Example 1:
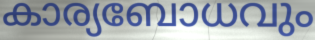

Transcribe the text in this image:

കാര്യബോധവും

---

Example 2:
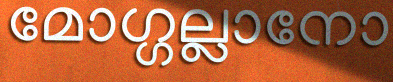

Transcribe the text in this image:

മോഗ്ഗല്ലാനോ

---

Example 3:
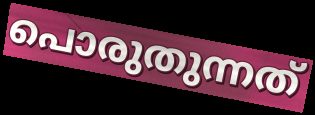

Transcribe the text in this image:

പൊരുതുന്നത്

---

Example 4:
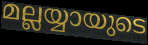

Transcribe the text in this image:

മല്ലയ്യായുടെ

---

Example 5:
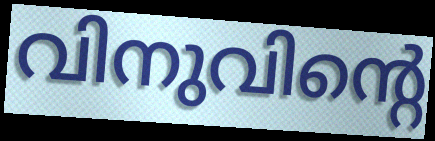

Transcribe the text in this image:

വിനുവിന്റെ